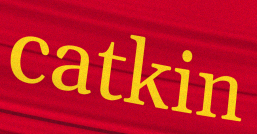
catkin